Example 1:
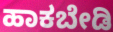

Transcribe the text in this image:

ಹಾಕಬೇಡಿ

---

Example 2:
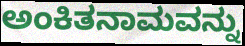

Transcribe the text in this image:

ಅಂಕಿತನಾಮವನ್ನು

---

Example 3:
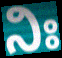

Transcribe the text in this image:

ನಿಃ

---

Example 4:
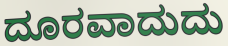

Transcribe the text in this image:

ದೂರವಾದುದು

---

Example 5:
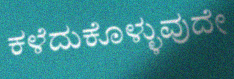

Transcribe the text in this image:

ಕಳೆದುಕೊಳ್ಳುವುದೇ